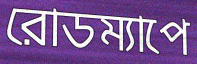
রোডম্যাপে